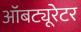
ऑबट्यूरेटर